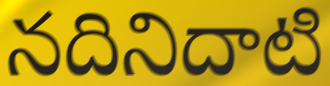
నదినిదాటి